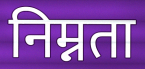
निम्नता